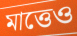
মাত্তেও